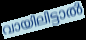
വായിലിട്ടാൽ